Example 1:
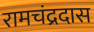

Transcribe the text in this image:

रामचंद्रदास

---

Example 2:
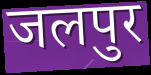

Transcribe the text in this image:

जलपुर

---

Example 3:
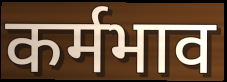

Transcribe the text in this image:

कर्मभाव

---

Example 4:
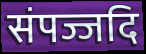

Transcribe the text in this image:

संपज्जदि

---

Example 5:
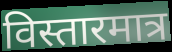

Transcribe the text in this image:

विस्तारमात्र